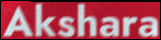
Akshara